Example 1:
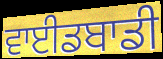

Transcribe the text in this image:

ਵਾਈਡਬਾਡੀ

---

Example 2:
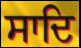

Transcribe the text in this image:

ਸਾਦਿ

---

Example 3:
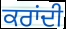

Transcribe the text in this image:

ਕਰਾਂਦੀ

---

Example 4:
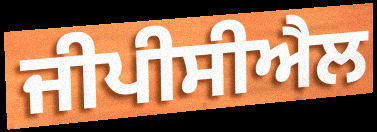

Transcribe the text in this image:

ਜੀਪੀਸੀਐਲ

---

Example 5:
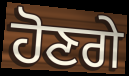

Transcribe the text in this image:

ਹੋਣਗੇ